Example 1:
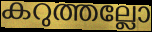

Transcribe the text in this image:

കറുത്തല്ലോ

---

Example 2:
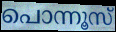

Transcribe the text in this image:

പൊന്നൂസ്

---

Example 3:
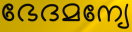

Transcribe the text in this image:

ഭേദമന്യേ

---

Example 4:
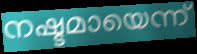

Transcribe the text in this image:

നഷ്ടമായെന്ന്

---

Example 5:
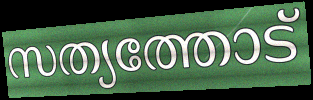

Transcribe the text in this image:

സത്യത്തോട്